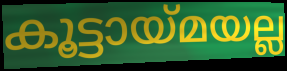
കൂട്ടായ്മയല്ല